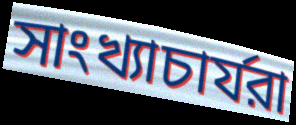
সাংখ্যাচার্যরা